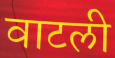
वाटली